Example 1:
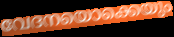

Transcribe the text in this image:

വേദനയൊക്കെയും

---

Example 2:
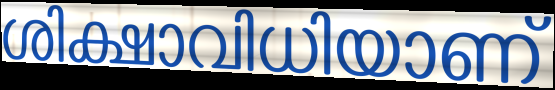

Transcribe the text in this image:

ശിക്ഷാവിധിയാണ്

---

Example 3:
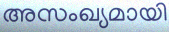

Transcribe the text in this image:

അസംഖ്യമായി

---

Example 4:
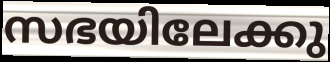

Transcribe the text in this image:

സഭയിലേക്കു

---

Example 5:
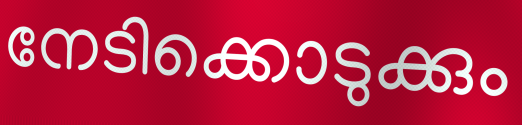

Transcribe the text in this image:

നേടിക്കൊടുക്കും